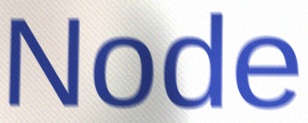
Node